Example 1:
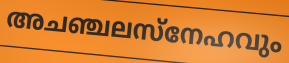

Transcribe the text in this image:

അചഞ്ചലസ്നേഹവും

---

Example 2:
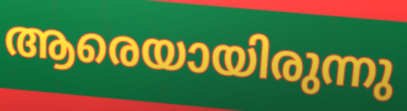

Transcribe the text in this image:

ആരെയായിരുന്നു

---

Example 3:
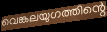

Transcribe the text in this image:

വെങ്കലയുഗത്തിന്റെ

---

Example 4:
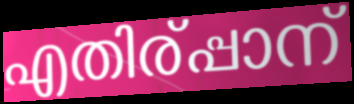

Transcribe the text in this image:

എതിര്പ്പാന്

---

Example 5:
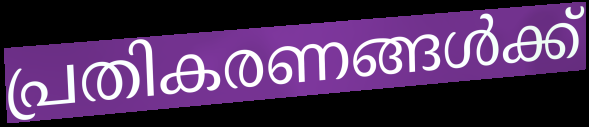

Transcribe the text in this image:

പ്രതികരണങ്ങൾക്ക്